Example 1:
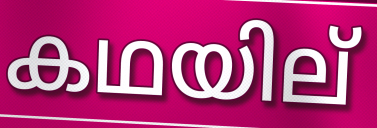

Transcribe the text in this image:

കഥയില്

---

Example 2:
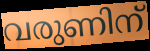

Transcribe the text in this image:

വരുണിന്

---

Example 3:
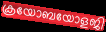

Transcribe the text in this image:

ക്രയോബയോളജി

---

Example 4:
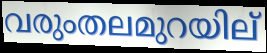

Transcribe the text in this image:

വരുംതലമുറയില്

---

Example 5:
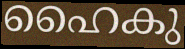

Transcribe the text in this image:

ഹൈകു